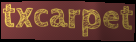
txcarpet